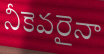
నీకెవరైనా